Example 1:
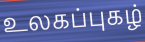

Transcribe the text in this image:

உலகப்புகழ்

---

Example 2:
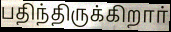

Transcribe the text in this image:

பதிந்திருக்கிறார்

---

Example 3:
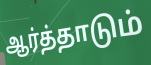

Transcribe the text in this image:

ஆர்த்தாடும்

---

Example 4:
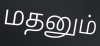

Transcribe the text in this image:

மதனும்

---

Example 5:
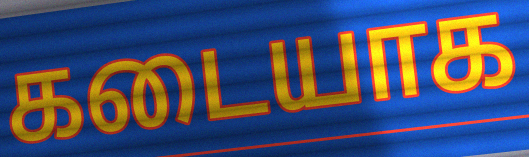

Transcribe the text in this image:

கடையாக